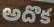
అదొక